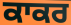
ਕਾਕਰ